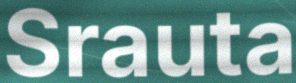
Srauta